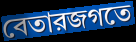
বেতারজগতে